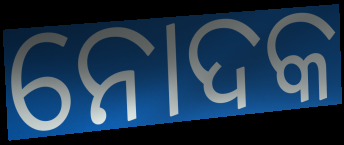
ନୋଦକ